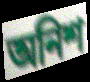
অনিশ